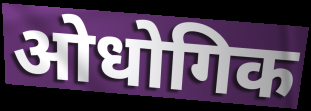
ओधोगिक